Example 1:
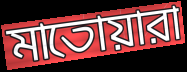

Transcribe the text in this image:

মাতোয়ারা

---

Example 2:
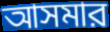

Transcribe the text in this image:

আসমার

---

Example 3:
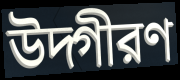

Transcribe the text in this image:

উদ্গীরণ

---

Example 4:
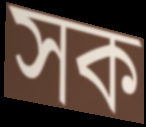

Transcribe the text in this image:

সক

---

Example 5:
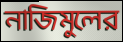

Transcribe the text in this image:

নাজিমুলের